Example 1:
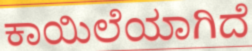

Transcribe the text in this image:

ಕಾಯಿಲೆಯಾಗಿದೆ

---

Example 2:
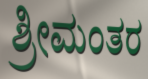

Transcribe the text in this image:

ಶ್ರೀಮಂತರ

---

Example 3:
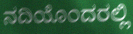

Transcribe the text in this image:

ನದಿಯೊಂದರಲ್ಲಿ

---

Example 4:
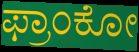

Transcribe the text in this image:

ಫ್ರಾಂಕೋ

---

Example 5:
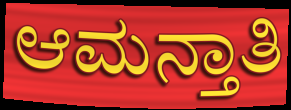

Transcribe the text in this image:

ಆಮನ್ತಾತಿ